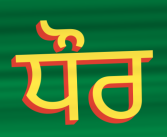
ਧੌਰ